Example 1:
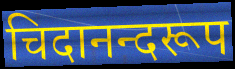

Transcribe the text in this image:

चिदानन्दरूप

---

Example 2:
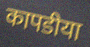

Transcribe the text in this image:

कापडीया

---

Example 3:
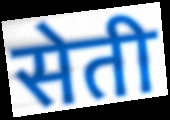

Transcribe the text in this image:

सेती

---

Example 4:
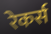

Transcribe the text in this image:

रेकर्स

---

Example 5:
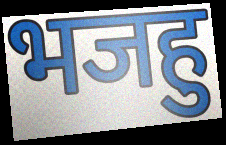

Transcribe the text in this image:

भजहु